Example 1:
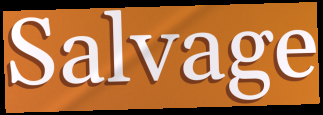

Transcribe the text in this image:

Salvage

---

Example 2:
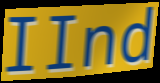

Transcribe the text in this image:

IInd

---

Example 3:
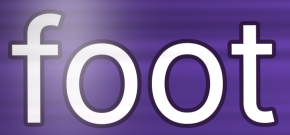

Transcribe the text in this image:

foot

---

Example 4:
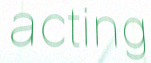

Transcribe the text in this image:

acting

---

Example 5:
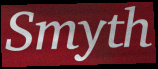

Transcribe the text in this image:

Smyth